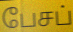
பேசப்